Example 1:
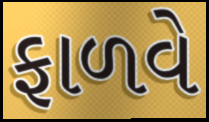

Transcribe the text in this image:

ફાળવે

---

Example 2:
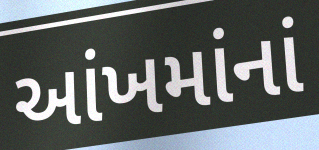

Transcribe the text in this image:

આંખમાંનાં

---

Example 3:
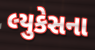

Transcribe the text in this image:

લ્યુકેસના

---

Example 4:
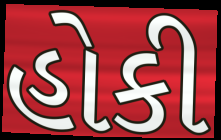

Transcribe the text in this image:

હોકી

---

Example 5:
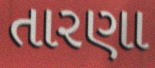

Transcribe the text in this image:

તારણા